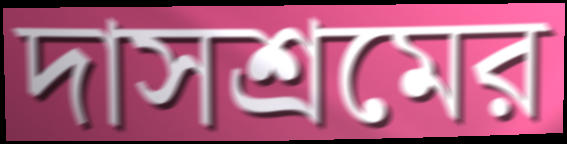
দাসশ্রমের